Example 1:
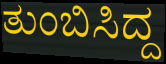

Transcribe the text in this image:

ತುಂಬಿಸಿದ್ದ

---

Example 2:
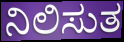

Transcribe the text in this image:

ನಿಲಿಸುತ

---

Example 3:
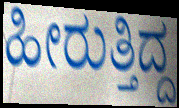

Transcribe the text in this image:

ಹೀರುತ್ತಿದ್ದ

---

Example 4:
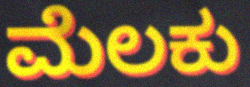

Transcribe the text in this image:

ಮೆಲಕು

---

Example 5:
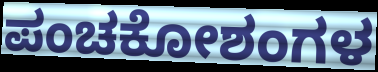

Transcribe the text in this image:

ಪಂಚಕೋಶಂಗಳ